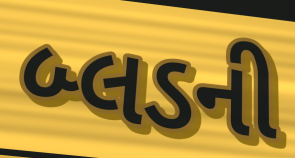
બ્લડની